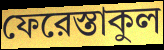
ফেরেস্তাকুল